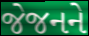
જેજનને